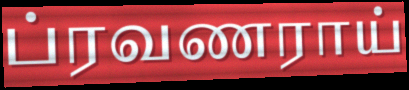
ப்ரவணராய்